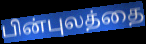
பின்புலத்தை